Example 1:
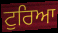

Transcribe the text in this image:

ਟੁਰਿਆ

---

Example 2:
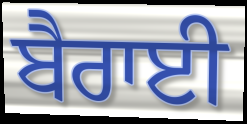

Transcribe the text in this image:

ਬੈਰਾਈ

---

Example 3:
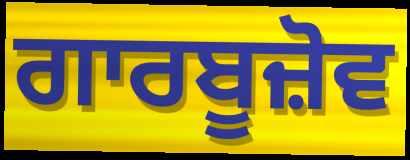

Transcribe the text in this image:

ਗਾਰਬੂਜ਼ੋਵ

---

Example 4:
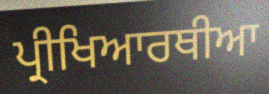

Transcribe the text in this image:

ਪ੍ਰੀਖਿਆਰਥੀਆ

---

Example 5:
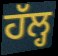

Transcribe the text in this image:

ਹੱਲ੍ਹ